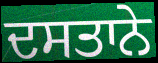
ਦਸਤਾਨੇ